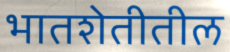
भातशेतीतील